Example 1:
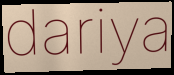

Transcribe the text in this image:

dariya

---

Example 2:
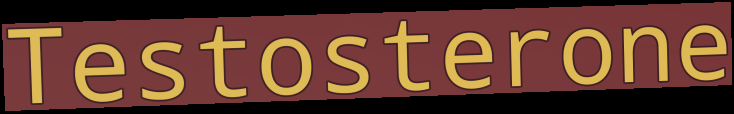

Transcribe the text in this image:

Testosterone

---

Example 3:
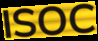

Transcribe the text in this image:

ISOC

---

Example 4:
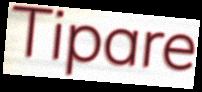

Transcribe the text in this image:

Tipare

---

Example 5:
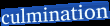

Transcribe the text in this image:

culmination